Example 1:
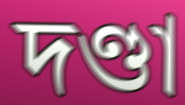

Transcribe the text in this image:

দণ্ডা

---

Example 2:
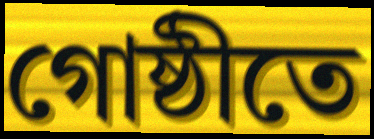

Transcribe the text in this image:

গোষ্ঠীতে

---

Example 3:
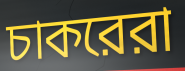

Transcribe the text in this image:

চাকরেরা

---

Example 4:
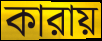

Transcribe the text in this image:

কারায়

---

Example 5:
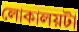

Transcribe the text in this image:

লোকালয়টা